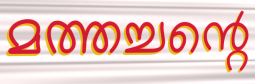
മത്തച്ചന്റെ